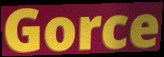
Gorce